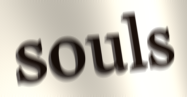
souls